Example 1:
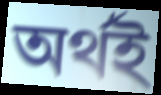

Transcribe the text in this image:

অৰ্থই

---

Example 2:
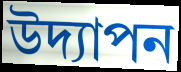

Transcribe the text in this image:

উদ্যাপন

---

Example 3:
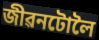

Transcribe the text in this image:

জীৱনটোলৈ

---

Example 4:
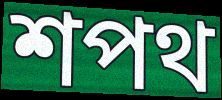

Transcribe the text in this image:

শপথ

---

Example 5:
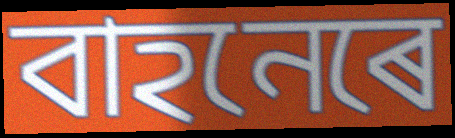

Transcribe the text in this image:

বাহনেৰে